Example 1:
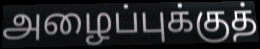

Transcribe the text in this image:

அழைப்புக்குத்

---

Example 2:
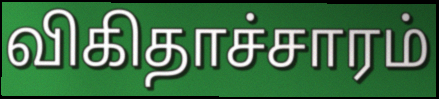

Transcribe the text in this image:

விகிதாச்சாரம்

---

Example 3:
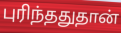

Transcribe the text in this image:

புரிந்ததுதான்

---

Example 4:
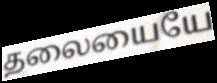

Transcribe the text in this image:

தலையையே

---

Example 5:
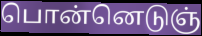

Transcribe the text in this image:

பொன்னெடுஞ்